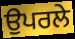
ਉਪਰਲੇ